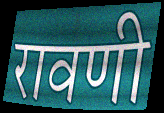
रावणी